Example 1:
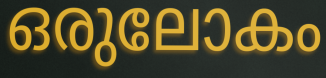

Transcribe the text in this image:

ഒരുലോകം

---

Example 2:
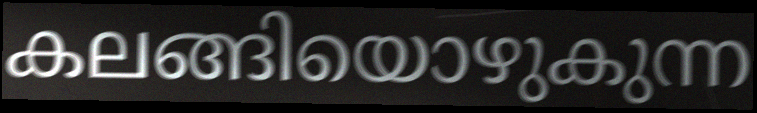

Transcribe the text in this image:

കലങ്ങിയൊഴുകുന്ന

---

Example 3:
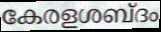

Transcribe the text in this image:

കേരളശബ്ദം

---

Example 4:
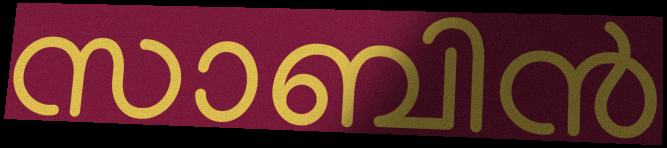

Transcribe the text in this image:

സാബിൻ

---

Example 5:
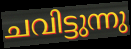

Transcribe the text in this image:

ചവിട്ടുന്നു